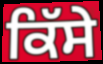
ਕਿੱਸੇ